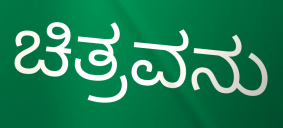
ಚಿತ್ರವನು